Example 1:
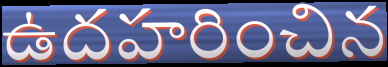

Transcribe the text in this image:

ఉదహరించిన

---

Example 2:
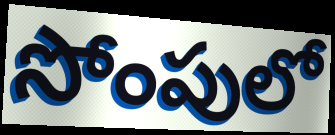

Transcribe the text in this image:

సోంపులో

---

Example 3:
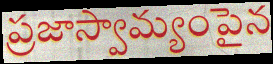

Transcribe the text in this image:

ప్రజాస్వామ్యంపైన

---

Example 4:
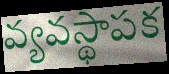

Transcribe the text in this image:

వ్యవస్థాపక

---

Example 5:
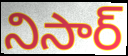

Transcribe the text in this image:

నిసార్